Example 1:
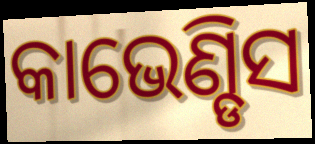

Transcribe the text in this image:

କାଭେଣ୍ଡିସ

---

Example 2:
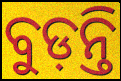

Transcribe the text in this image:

ବୁଡ଼ନ୍ତି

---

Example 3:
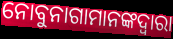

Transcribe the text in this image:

ନୋବୁନାଗାମାନଙ୍କଦ୍ୱାରା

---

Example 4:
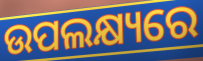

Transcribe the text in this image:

ଉପଲକ୍ଷ୍ୟରେ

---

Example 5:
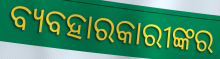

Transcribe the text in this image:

ବ୍ୟବହାରକାରୀଙ୍କର